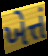
ખેત્તં